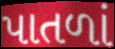
પાતળાં